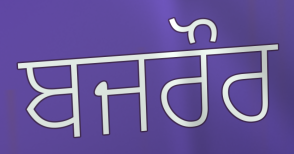
ਬਜਰੌਰ